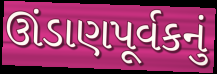
ઊંડાણપૂર્વકનું